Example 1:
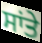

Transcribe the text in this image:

ਸਾਂਤੇ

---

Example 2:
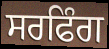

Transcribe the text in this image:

ਸਰਫਿੰਗ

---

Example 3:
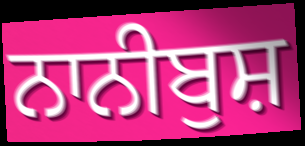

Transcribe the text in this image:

ਨਾਨੀਬੁਸ਼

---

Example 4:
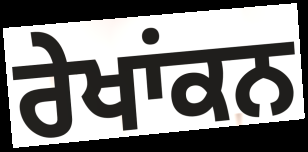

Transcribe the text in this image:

ਰੇਖਾਂਕਨ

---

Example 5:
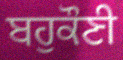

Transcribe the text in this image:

ਬਹੁਕੌਣੀ